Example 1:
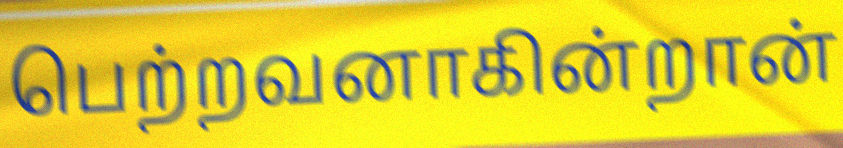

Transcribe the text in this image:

பெற்றவனாகின்றான்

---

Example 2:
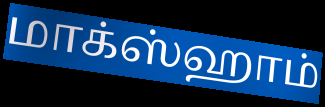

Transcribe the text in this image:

மாக்ஸ்ஹாம்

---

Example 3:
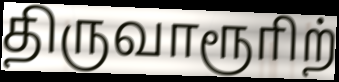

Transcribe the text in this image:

திருவாரூரிற்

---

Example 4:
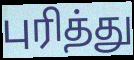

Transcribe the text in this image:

புரித்து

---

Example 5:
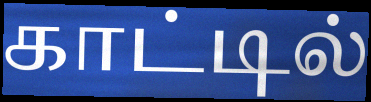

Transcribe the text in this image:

காட்டில்